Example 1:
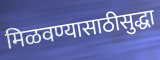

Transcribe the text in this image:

मिळवण्यासाठीसुद्धा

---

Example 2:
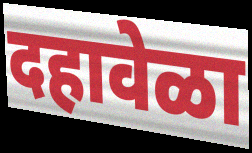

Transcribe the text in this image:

दहावेळा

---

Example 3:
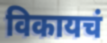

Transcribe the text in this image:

विकायचं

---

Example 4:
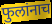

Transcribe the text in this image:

फुलांनाच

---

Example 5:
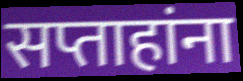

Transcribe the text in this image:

सप्ताहांना